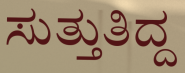
ಸುತ್ತುತಿದ್ದ